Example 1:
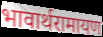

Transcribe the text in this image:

भावार्थरामायण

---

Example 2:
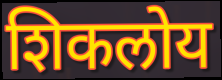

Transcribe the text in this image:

शिकलोय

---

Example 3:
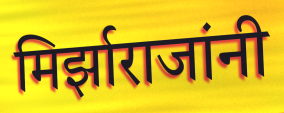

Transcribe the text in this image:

मिर्झाराजांनी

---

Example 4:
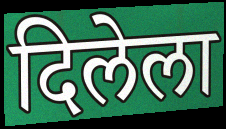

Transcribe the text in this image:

दिलेला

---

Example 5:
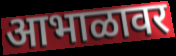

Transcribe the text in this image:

आभाळावर